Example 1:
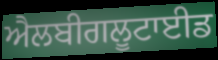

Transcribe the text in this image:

ਐਲਬੀਗਲੂਟਾਈਡ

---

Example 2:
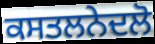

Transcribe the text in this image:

ਕਸਤਲਨੇਦਲੋ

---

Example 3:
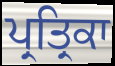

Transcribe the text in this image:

ਪ੍ਰਤ੍ਰਿਕਾ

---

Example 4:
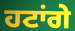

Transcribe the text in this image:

ਹਟਾਂਗੇ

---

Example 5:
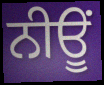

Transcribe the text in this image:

ਨੀਊਂ